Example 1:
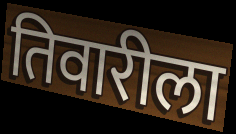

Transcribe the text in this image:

तिवारीला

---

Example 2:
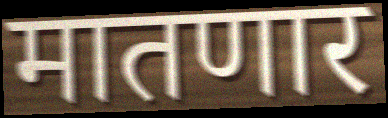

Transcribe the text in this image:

मातणार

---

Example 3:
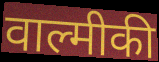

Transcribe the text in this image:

वाल्मीकी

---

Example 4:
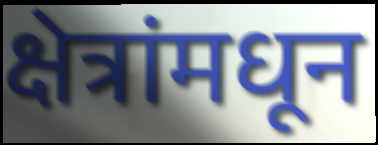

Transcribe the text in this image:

क्षेत्रांमधून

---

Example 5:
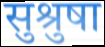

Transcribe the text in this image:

सुश्रुषा